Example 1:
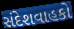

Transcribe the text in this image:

સંદેશવાહકો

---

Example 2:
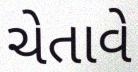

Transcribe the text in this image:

ચેતાવે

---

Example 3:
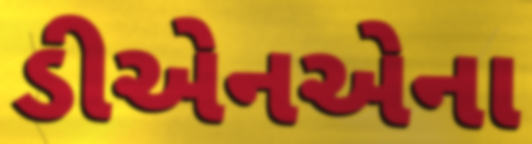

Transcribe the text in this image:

ડીએનએના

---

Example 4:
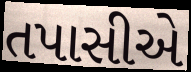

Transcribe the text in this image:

તપાસીએ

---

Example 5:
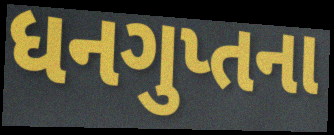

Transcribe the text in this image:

ધનગુપ્તના